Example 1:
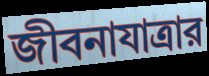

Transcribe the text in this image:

জীবনাযাত্রার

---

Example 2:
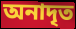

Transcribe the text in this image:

অনাদৃত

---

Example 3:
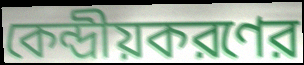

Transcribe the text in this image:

কেন্দ্রীয়করণের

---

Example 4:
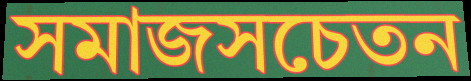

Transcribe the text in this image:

সমাজসচেতন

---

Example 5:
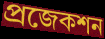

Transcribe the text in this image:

প্রজেকশন